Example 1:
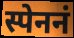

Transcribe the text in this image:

स्पेननं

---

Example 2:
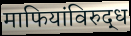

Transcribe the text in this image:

माफियांविरुद्ध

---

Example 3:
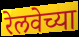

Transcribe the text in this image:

रेलवेच्या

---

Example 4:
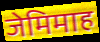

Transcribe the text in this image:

जेमिमाह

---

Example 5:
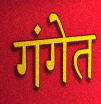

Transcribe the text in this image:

गंगेत